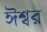
ঈশ্বর